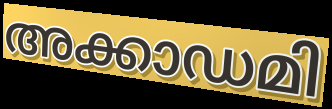
അക്കാഡമി